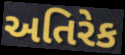
અતિરેક